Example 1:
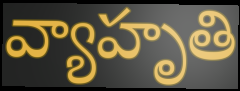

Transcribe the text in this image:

వ్యాహృతి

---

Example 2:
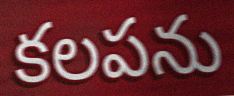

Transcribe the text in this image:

కలపను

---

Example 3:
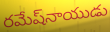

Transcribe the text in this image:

రమేష్‌నాయుడు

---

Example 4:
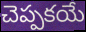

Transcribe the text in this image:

చెప్పకయే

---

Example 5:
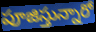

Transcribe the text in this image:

పూజిస్తున్నారో